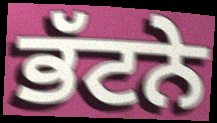
ਭੱਟਨੇ